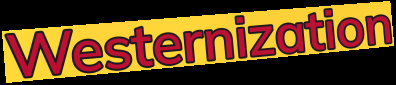
Westernization